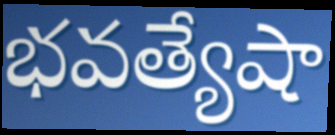
భవత్యేషా